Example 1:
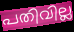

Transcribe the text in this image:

പതിവില്ല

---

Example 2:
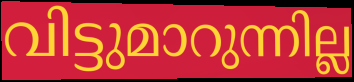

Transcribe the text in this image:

വിട്ടുമാറുന്നില്ല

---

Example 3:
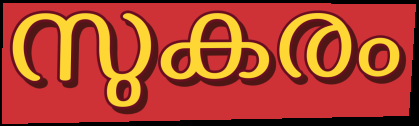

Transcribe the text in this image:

സുകരം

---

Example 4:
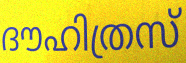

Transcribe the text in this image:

ദൗഹിത്രസ്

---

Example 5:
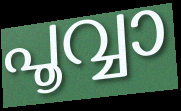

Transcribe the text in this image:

പൂവ്വാ